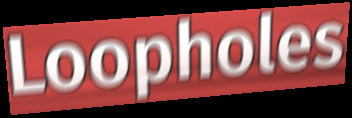
Loopholes